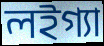
লইগ্যা